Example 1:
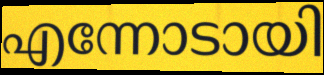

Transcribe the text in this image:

എന്നോടായി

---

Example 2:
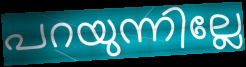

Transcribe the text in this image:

പറയുന്നില്ലേ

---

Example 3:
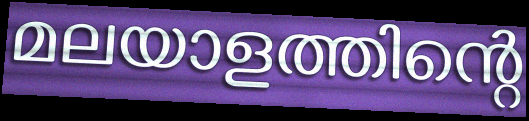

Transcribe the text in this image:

മലയാളത്തിന്റെ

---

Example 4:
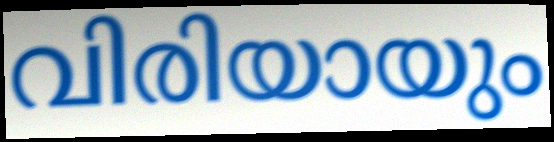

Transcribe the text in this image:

വിരിയായും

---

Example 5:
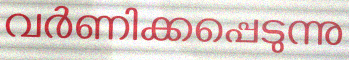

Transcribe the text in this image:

വർണിക്കപ്പെടുന്നു